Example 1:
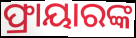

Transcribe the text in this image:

ଫ୍ରାୟାରଙ୍କ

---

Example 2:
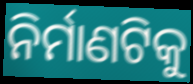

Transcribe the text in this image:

ନିର୍ମାଣଟିକୁ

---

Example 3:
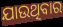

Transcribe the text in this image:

ଯାଉଥିବାର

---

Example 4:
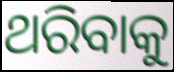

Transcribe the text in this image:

ଥରିବାକୁ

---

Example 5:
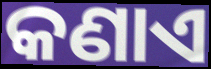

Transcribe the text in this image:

କଣାଏ